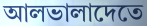
আলভালাদেতে